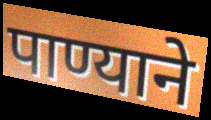
पाण्याने